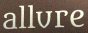
allure